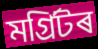
মৰ্গ্ৰিটৰ